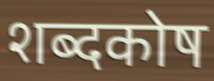
शब्दकोष